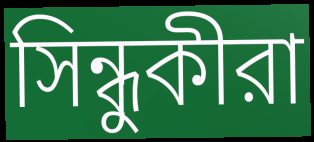
সিন্ধুকীরা